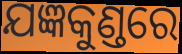
ଯଜ୍ଞକୁଣ୍ଡରେ